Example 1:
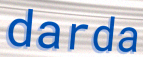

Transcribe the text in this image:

darda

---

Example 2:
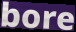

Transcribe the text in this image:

bore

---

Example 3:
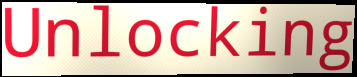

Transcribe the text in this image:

Unlocking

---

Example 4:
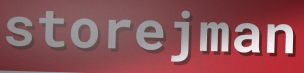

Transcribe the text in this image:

storejman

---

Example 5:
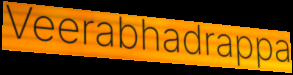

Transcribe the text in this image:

Veerabhadrappa